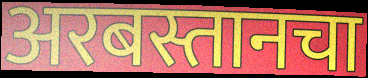
अरबस्तानचा